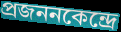
প্রজননকেন্দ্রে